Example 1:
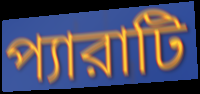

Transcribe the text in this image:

প্যারাটি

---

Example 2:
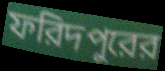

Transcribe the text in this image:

ফরিদপুরের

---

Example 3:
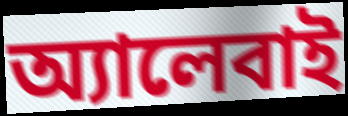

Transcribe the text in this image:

অ্যালেবাই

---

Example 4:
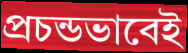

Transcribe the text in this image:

প্রচন্ডভাবেই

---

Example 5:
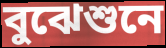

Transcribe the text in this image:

বুঝেশুনে